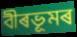
বীৰভূমৰ